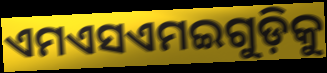
ଏମଏସଏମଇଗୁଡ଼ିକୁ